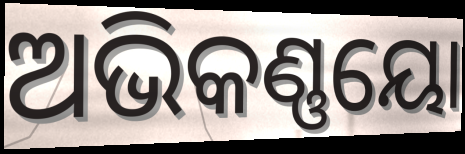
ଅଭିକଣ୍ଣୟୋ